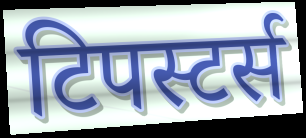
टिपस्टर्स